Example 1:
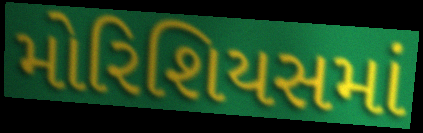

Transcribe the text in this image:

મોરિશિયસમાં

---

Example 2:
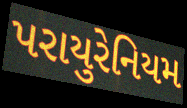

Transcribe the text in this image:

પરાયુરેનિયમ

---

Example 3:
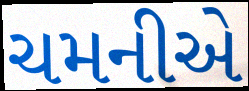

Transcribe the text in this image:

ચમનીએ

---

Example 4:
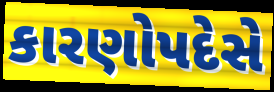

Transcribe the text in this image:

કારણોપદેસે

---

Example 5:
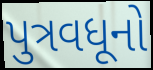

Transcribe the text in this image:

પુત્રવધૂનો